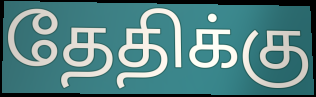
தேதிக்கு